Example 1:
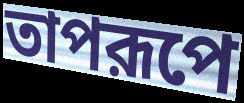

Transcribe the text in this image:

তাপরূপে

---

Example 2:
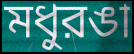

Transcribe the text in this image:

মধুরঙা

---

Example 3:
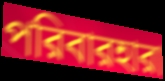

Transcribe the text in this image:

পরিবারহারা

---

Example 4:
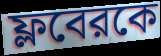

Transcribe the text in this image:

ফ্লবেরকে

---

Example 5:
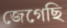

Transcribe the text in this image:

জেগেছি